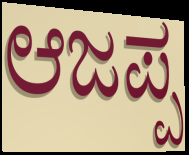
ಆಜಪ್ಪ